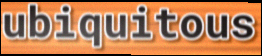
ubiquitous